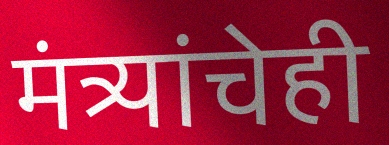
मंत्र्यांचेही